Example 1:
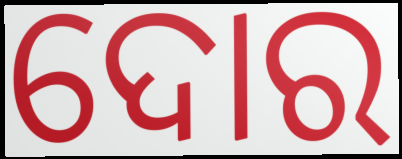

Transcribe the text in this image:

ଦୋର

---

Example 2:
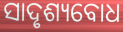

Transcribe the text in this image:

ସାଦୃଶ୍ୟବୋଧ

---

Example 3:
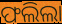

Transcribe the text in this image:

ଫଲିଲା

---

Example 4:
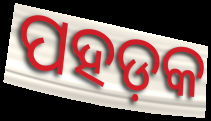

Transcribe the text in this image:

ପହଡ଼କ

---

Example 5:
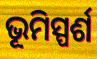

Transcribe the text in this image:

ଭୂମିସ୍ପର୍ଶ